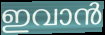
ഇവാൻ